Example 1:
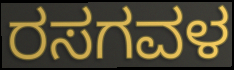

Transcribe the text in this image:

ರಸಗವಳ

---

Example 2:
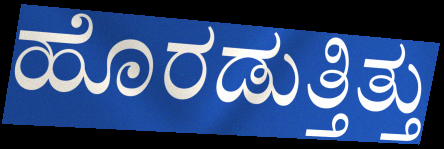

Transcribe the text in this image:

ಹೊರಡುತ್ತಿತ್ತು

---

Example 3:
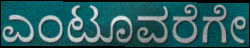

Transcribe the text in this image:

ಎಂಟೂವರೆಗೇ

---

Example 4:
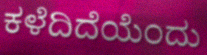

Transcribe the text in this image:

ಕಳೆದಿದೆಯೆಂದು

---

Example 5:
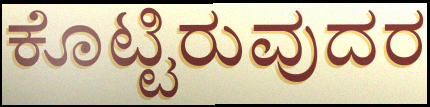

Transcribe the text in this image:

ಕೊಟ್ಟಿರುವುದರ